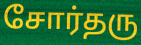
சோர்தரு